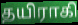
தயிராகி